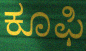
ಕೂಫಿ